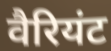
वैरियंट